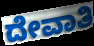
ದೇವಾತಿ